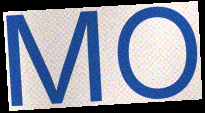
MO